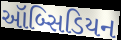
ઑબ્સિડિયન